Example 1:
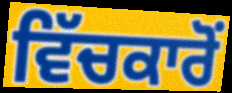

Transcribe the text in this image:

ਵਿੱਚਕਾਰੋਂ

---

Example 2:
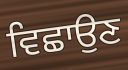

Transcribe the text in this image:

ਵਿਛਾਉਣ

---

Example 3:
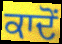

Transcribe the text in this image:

ਕਾਦੋਂ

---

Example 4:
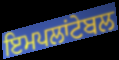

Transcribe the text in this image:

ਇਮਪਲਾਂਟੇਬਲ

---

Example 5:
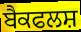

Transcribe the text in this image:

ਬੈਕਫਲਸ਼